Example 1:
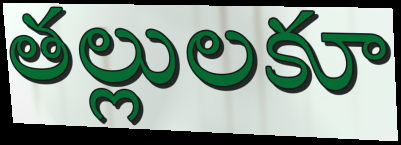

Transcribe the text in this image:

తల్లులకూ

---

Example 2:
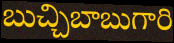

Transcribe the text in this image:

బుచ్చిబాబుగారి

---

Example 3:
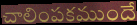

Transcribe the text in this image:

చాలింపకముందే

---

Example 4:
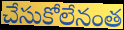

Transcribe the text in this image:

చేసుకోలేనంత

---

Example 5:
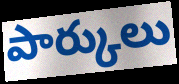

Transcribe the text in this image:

పార్కులు